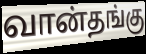
வான்தங்கு